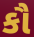
કૌ